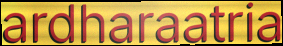
ardharaatria